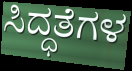
ಸಿದ್ಧತೆಗಳ